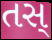
તસ્